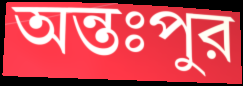
অন্তঃপুর